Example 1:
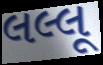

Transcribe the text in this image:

લલ્લૂ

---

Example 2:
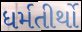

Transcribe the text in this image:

ધર્મતીર્થો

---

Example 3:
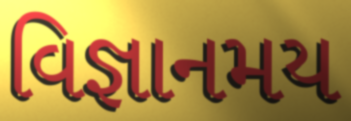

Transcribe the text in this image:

વિજ્ઞાનમય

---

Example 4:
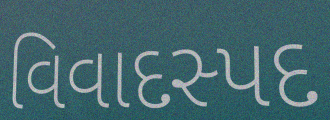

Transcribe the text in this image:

વિવાદસ્પદ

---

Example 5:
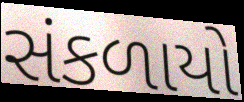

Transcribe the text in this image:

સંકળાયો